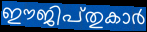
ഈജിപ്‌തുകാർ